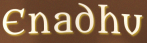
Enadhu